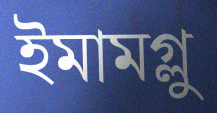
ইমামগ্লু